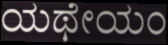
ಯಥೇಯಂ